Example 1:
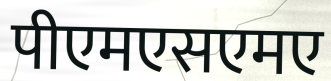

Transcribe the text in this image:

पीएमएसएमए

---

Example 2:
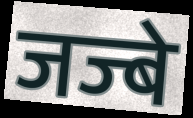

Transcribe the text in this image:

जज्बे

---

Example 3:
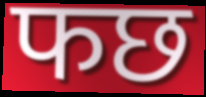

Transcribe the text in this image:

फछ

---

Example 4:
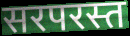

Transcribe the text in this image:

सरपरस्त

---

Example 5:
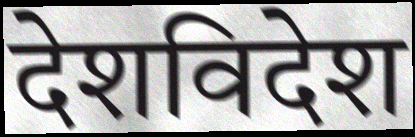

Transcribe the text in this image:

देशविदेश